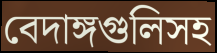
বেদাঙ্গগুলিসহ